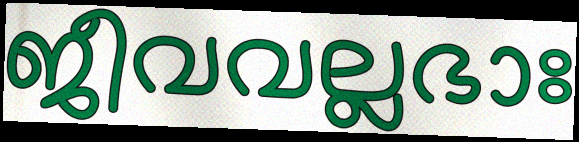
ജീവവല്ലഭാഃ